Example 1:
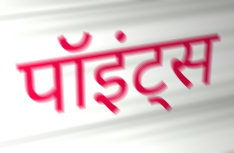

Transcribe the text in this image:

पॉइंट्स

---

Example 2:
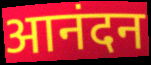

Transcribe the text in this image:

आनंदन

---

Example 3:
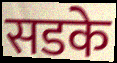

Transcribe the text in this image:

सडके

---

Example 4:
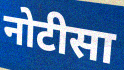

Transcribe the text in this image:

नोटीसा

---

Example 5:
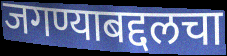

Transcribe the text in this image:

जगण्याबद्दलचा